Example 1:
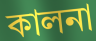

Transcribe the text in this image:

কালনা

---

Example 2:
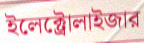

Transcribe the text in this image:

ইলেক্ট্রোলাইজার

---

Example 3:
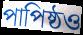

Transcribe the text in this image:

পাপিষ্ঠও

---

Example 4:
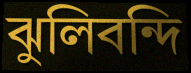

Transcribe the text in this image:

ঝুলিবন্দি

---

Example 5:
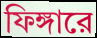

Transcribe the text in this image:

ফিঙ্গারে